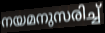
നയമനുസരിച്ച്